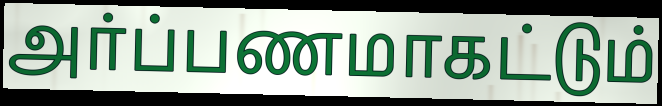
அர்ப்பணமாகட்டும்